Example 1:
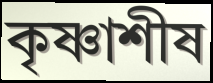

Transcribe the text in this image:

কৃষ্ণাশীষ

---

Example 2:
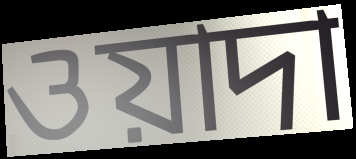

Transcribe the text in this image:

ওয়াদা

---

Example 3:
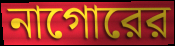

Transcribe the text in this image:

নাগোরের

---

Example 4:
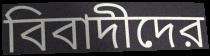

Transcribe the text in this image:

বিবাদীদের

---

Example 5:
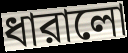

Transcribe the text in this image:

ধারালো